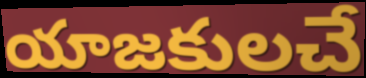
యాజకులచే